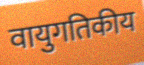
वायुगतिकीय